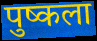
पुष्कला